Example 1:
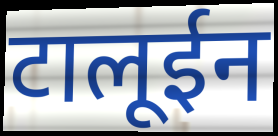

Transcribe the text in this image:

टालूईन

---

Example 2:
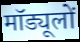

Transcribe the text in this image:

मॉड्यूलों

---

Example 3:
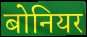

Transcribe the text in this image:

बोनियर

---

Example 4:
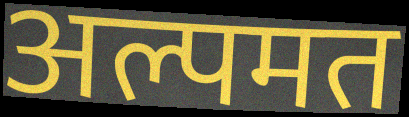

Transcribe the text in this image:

अल्पमत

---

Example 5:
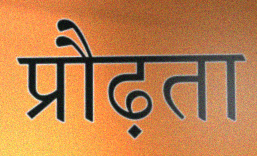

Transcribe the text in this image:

प्रौढ़ता